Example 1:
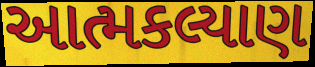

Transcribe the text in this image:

આત્મકલ્યાણ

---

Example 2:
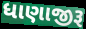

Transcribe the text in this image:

ધાણાજીરૂ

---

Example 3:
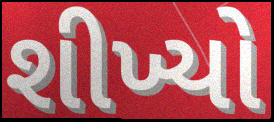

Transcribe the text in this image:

શીખ્યો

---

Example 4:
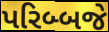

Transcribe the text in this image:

પરિબ્બજે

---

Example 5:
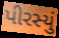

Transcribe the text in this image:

પીરસ્યું